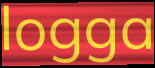
logga